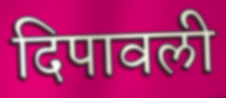
दिपावली